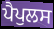
ਪੈਪੁਲਸ